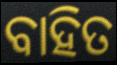
ବାହିତ